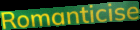
Romanticise